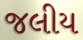
જલીય